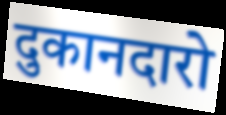
दुकानदारो